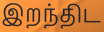
இறந்திட